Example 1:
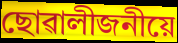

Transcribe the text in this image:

ছোৱালীজনীয়ে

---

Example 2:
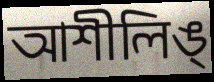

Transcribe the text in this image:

আশীলিঙ্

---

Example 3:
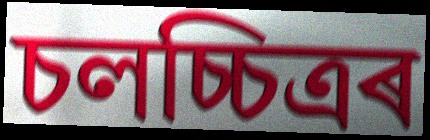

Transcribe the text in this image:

চলচ্চিত্ৰৰ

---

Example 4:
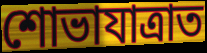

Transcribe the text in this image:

শোভাযাত্ৰাত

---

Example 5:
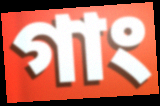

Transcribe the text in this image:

গাং